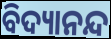
ବିଦ୍ୟାନନ୍ଦ